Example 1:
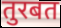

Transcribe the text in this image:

तुरबत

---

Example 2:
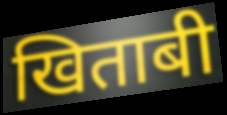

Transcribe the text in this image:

खिताबी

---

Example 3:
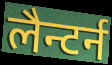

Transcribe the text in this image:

लैन्टर्न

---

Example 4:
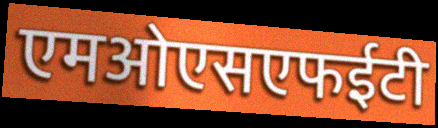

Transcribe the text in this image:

एमओएसएफईटी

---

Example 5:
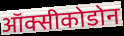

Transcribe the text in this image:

ऑक्सीकोडोन